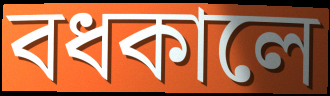
বধকালে